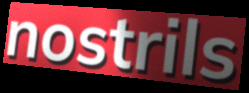
nostrils